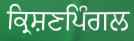
ਕ੍ਰਿਸ਼ਣਪਿੰਗਲ